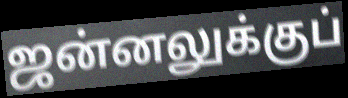
ஜன்னலுக்குப்